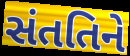
સંતતિને